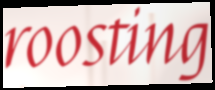
roosting